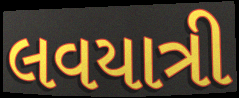
લવયાત્રી